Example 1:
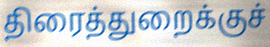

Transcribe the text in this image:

திரைத்துறைக்குச்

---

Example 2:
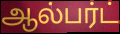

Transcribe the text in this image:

ஆல்பர்ட்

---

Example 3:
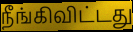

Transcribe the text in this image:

நீங்கிவிட்டது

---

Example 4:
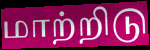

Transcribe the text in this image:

மாற்றிடு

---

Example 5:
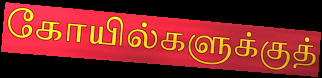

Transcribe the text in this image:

கோயில்களுக்குத்